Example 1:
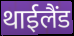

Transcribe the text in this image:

थाईलैंड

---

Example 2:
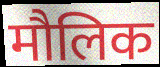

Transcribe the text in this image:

मौलिक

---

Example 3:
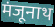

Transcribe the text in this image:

मंजूनाथ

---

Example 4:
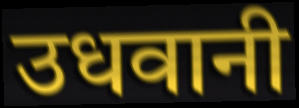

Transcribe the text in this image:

उधवानी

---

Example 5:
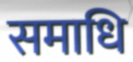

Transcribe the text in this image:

समाधि